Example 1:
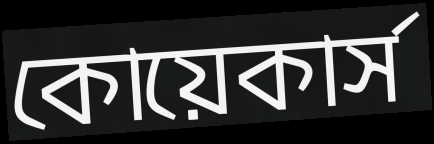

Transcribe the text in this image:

কোয়েকার্স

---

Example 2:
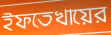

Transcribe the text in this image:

ইফতেখায়ের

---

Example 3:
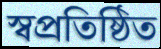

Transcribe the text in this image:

স্বপ্রতিষ্ঠিত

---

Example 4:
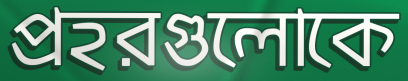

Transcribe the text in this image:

প্রহরগুলোকে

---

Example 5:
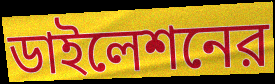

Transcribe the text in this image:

ডাইলেশনের